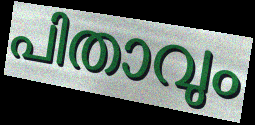
പിതാവും